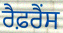
ਰੈਫ਼ਰੈਂਸ